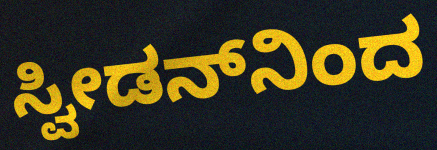
ಸ್ವೀಡನ್‌ನಿಂದ